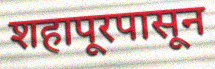
शहापूरपासून